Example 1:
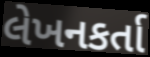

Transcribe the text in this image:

લેખનકર્તા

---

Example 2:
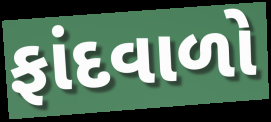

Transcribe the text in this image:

ફાંદવાળો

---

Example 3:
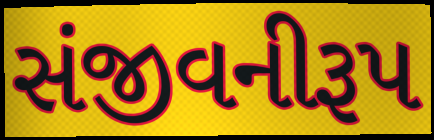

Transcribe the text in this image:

સંજીવનીરૂપ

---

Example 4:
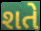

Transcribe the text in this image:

શતે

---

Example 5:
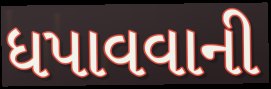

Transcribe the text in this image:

ધપાવવાની